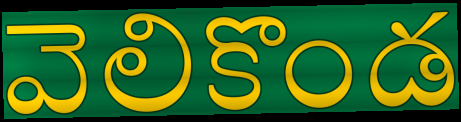
వెలికొండ